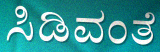
ಸಿಡಿವಂತೆ